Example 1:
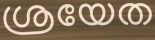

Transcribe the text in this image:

ശ്രയേത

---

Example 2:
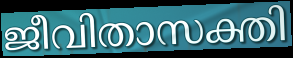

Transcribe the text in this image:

ജീവിതാസക്തി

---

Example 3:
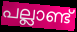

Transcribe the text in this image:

പല്ലാണ്ട്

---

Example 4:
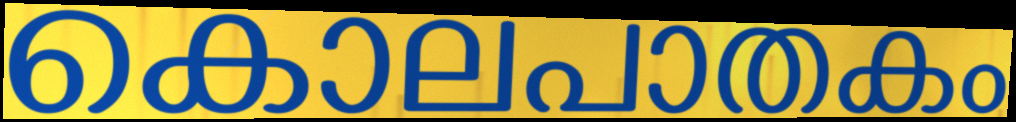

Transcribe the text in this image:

കൊലപാതകം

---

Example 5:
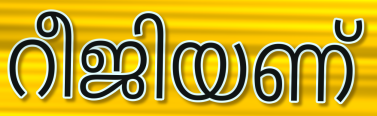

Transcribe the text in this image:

റീജിയണ്